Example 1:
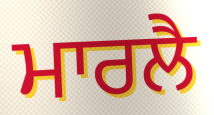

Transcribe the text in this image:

ਮਾਰਲੈ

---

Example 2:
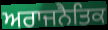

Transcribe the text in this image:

ਅਰਾਜਨੈਤਿਕ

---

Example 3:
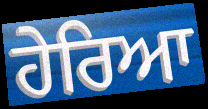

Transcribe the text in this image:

ਹੇਰਿਆ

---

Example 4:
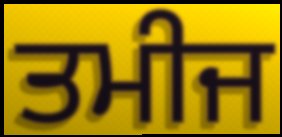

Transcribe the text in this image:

ਤਮੀਜ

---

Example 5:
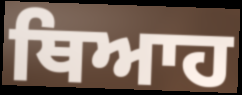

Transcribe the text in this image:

ਥਿਆਹ